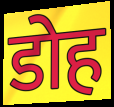
डोह